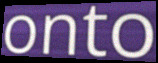
onto